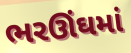
ભરઊંઘમાં